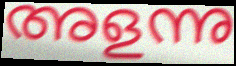
അളന്നു